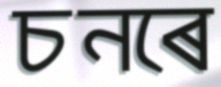
চনৰে